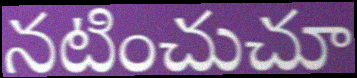
నటించుచూ